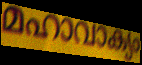
മഹാവാക്യം